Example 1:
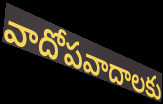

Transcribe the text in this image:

వాదోపవాదాలకు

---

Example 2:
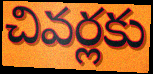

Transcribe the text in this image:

చివర్లకు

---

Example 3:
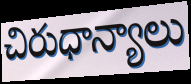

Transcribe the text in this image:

చిరుధాన్యాలు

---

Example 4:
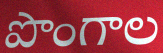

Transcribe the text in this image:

పొంగాల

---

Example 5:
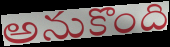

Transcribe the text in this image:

అనుకొంది